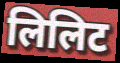
लिलिट